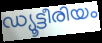
ഡ്യൂട്ടീരിയം